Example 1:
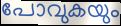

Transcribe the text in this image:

പോവുകയും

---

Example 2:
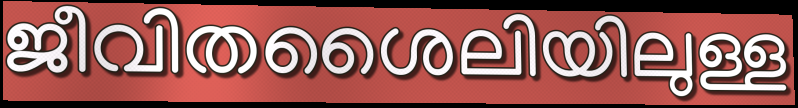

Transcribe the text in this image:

ജീവിതശൈലിയിലുള്ള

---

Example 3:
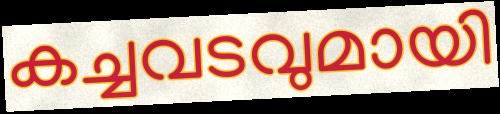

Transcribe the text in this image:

കച്ചവടവുമായി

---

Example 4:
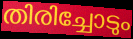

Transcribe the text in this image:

തിരിച്ചോടും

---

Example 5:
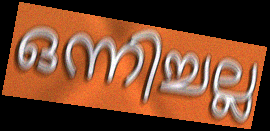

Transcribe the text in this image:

ഒന്നിച്ചല്ല